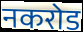
नकरोड